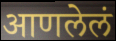
आणलेलं